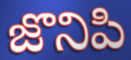
జొనిపి